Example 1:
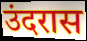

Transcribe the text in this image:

उंदरास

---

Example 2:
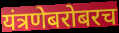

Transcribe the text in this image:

यंत्रणेबरोबरच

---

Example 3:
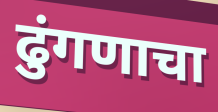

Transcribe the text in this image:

ढुंगणाचा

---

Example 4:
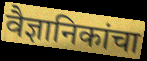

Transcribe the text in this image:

वैज्ञानिकांचा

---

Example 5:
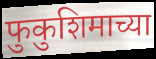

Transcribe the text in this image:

फुकुशिमाच्या